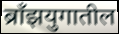
ब्राँझयुगातील